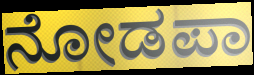
ನೋಡಪಾ